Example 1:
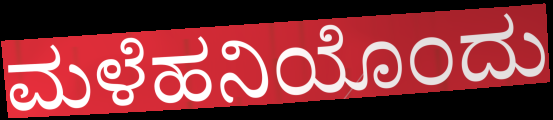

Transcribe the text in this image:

ಮಳೆಹನಿಯೊಂದು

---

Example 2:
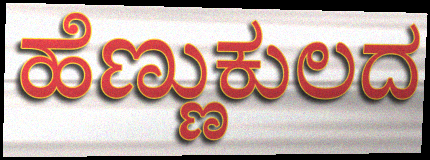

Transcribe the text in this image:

ಹೆಣ್ಣುಕುಲದ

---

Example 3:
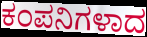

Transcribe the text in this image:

ಕಂಪನಿಗಳಾದ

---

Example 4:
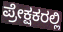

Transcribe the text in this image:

ಪ್ರೇಕ್ಷಕರಲ್ಲಿ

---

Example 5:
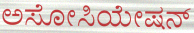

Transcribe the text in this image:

ಅಸೋಸಿಯೇಷನ್